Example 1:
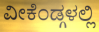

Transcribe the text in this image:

ವೀಕೆಂಡ್ಗಳಲ್ಲಿ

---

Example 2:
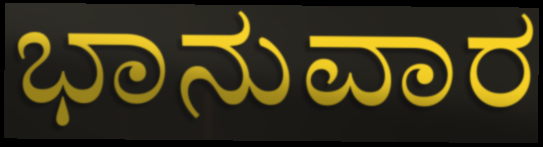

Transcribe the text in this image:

ಭಾನುವಾರ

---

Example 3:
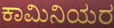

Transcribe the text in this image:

ಕಾಮಿನಿಯರ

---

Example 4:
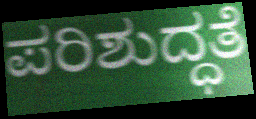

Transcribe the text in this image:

ಪರಿಶುದ್ಧತೆ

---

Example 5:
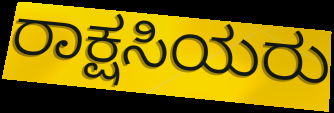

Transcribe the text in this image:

ರಾಕ್ಷಸಿಯರು